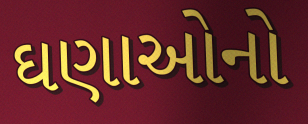
ઘણાઓનો